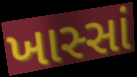
ખાસ્સાં